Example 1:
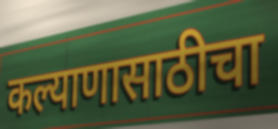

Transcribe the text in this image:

कल्याणासाठीचा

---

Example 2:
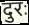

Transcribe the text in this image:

दुरः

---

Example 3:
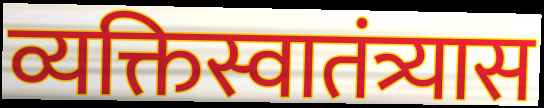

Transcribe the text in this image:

व्यक्तिस्वातंत्र्यास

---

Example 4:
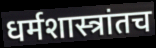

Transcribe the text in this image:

धर्मशास्त्रांतच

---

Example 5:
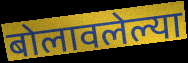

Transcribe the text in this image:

बोलावलेल्या